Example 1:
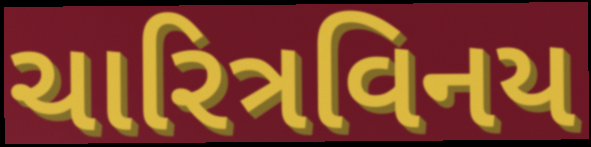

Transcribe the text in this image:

ચારિત્રવિનય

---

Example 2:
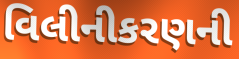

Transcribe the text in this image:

વિલીનીકરણની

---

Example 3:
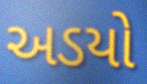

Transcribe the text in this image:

અડયો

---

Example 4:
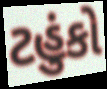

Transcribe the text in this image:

ટહુંકો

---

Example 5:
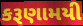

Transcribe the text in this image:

કરૂણામયી